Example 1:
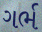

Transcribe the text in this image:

ગર્ભ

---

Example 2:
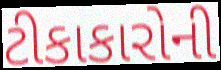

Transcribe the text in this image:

ટીકાકારોની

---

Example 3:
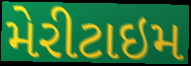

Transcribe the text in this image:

મેરીટાઇમ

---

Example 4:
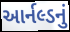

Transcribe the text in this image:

આર્નલ્ડનું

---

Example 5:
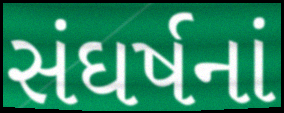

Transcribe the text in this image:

સંઘર્ષનાં